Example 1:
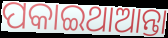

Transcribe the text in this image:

ପକାଇଥାଆନ୍ତା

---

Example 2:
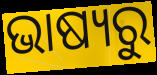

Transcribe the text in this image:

ଭାଷ୍ୟରୁ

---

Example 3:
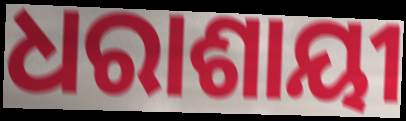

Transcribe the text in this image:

ଧରାଶାୟୀ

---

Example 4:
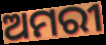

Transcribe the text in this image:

ଅମରୀ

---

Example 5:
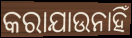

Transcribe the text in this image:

କରାଯାଉନାହିଁ